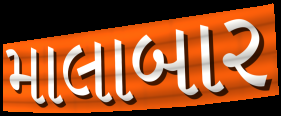
માલાબાર